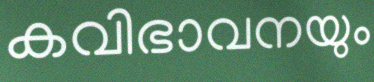
കവിഭാവനയും